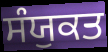
ਸੰਯੁਕਤ